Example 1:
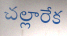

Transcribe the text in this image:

చల్లారేక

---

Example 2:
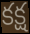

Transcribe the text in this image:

కక్ష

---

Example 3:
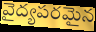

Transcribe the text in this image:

వైద్యపరమైన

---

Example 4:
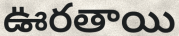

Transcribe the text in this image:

ఊరతాయి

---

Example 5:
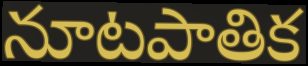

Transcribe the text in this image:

నూటపాతిక